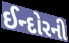
ઈન્દોરની